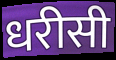
धरीसी